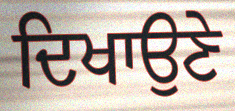
ਦਿਖਾਉਣੇ